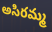
అసిరమ్మ